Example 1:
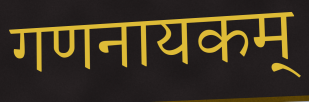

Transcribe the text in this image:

गणनायकम्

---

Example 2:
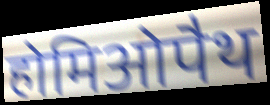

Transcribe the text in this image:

होमिओपैथ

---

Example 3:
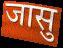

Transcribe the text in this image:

जासु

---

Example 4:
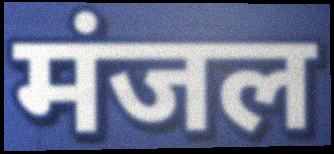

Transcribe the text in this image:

मंजल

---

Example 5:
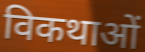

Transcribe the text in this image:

विकथाओं